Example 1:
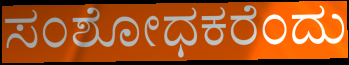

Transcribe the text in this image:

ಸಂಶೋಧಕರೆಂದು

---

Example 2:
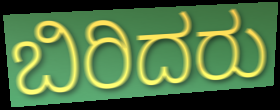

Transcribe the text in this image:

ಬಿರಿದರು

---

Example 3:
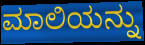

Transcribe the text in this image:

ಮಾಲಿಯನ್ನು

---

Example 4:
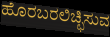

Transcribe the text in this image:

ಹೊರಬರಲಿಚ್ಛಿಸುವ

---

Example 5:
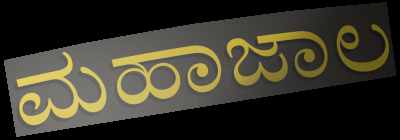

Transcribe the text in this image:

ಮಹಾಜಾಲ